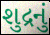
શુદ્રનું